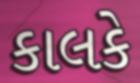
કાલકે